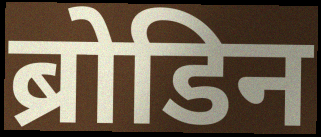
ब्रोडिन